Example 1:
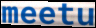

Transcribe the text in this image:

meetu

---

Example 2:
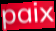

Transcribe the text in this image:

paix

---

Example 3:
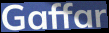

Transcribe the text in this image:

Gaffar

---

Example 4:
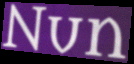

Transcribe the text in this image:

Nun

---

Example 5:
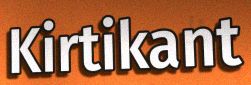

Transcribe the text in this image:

Kirtikant